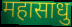
महासाधु